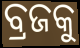
ବ୍ରଜକୁ